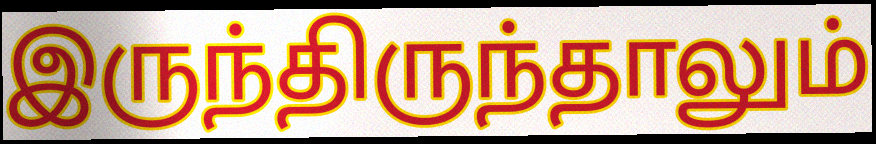
இருந்திருந்தாலும்